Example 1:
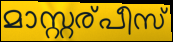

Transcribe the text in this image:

മാസ്റ്റര്പീസ്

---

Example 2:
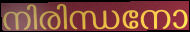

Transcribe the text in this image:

നിരിന്ധനോ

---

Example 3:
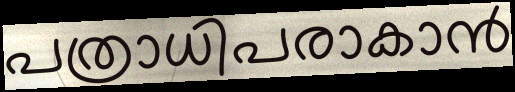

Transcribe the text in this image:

പത്രാധിപരാകാൻ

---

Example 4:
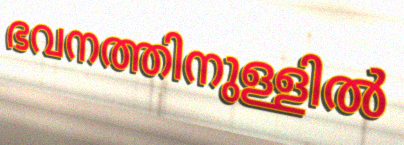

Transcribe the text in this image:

ഭവനത്തിനുള്ളിൽ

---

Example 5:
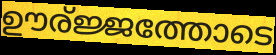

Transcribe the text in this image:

ഊര്ജ്ജത്തോടെ